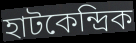
হাটকেন্দ্রিক